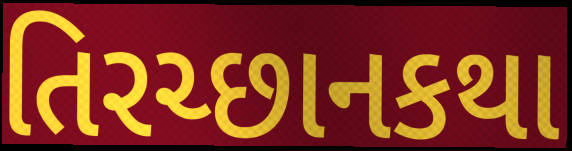
તિરચ્છાનકથા